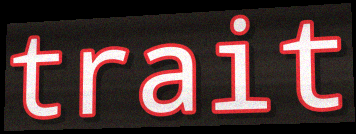
trait